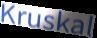
Kruskal